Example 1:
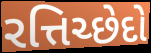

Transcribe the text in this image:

રત્તિચ્છેદો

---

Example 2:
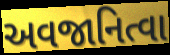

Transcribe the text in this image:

અવજાનિત્વા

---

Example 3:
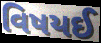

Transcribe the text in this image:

વિષયઈ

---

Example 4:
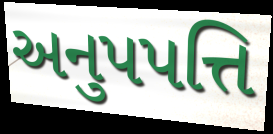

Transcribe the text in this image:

અનુપપત્તિ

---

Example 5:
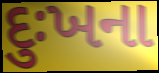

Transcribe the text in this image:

દુઃખના